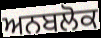
ਅਨਬਲੋਕ